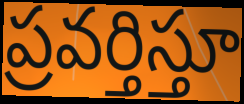
ప్రవర్తిస్తూ